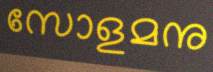
സോളമനു